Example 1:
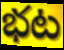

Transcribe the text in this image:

భట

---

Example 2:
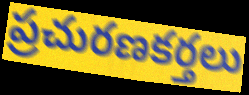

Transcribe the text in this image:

ప్రచురణకర్తలు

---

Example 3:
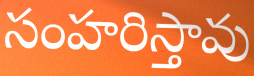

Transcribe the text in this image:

సంహరిస్తావు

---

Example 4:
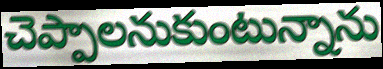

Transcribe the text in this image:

చెప్పాలనుకుంటున్నాను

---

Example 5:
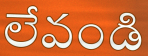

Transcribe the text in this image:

లేవండి